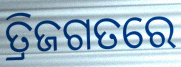
ତ୍ରିଜଗତରେ